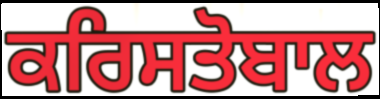
ਕਰਿਸਤੋਬਾਲ